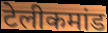
टेलीकमांड